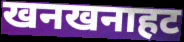
खनखनाहट